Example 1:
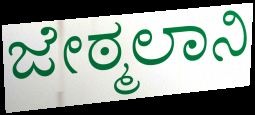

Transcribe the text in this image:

ಜೇಠ್ಮಲಾನಿ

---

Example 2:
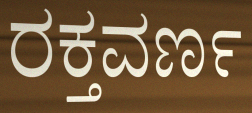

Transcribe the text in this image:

ರಕ್ತವರ್ಣ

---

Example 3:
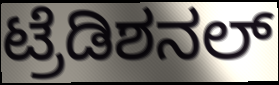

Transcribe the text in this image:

ಟ್ರೆಡಿಶನಲ್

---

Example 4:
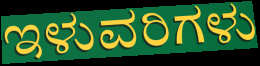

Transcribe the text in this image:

ಇಳುವರಿಗಳು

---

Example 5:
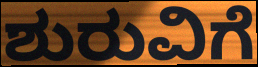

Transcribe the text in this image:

ಶುರುವಿಗೆ